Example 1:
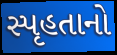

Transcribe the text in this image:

સ્પૃહતાનો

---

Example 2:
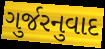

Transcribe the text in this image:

ગુર્જરનુવાદ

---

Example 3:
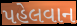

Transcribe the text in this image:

પહેલવાન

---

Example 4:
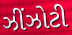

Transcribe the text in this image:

ઝીંઝોટી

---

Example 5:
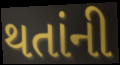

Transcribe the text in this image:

થતાંની